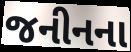
જનીનના